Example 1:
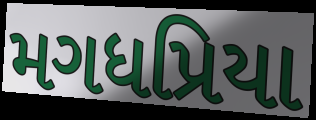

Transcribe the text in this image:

મગધપ્રિયા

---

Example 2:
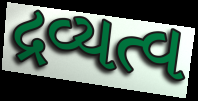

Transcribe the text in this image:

દ્રવ્યત્વ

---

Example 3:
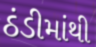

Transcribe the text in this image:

ઠંડીમાંથી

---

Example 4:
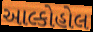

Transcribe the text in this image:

આલ્કોહોલ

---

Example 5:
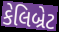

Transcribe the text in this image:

કેલિબ્રેટ